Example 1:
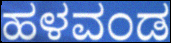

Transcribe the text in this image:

ಹಳವಂಡ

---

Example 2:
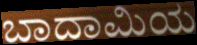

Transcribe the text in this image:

ಬಾದಾಮಿಯ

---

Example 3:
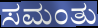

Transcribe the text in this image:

ಸಮಂತು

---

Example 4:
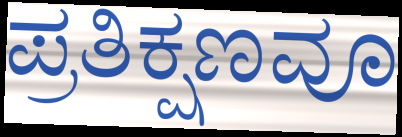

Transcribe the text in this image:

ಪ್ರತಿಕ್ಷಣವೂ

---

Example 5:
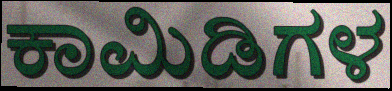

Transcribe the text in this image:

ಕಾಮಿಡಿಗಳ